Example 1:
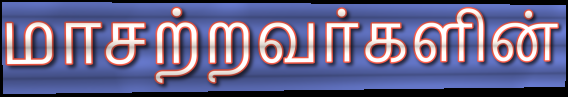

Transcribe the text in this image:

மாசற்றவர்களின்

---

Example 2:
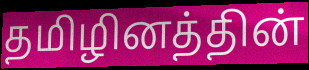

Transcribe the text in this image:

தமிழினத்தின்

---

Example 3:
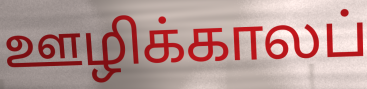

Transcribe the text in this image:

ஊழிக்காலப்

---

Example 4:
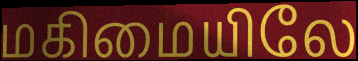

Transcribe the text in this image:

மகிமையிலே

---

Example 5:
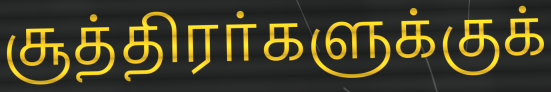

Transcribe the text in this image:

சூத்திரர்களுக்குக்